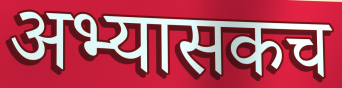
अभ्यासकच